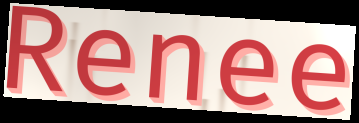
Renee